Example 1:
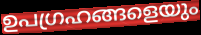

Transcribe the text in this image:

ഉപഗ്രഹങ്ങളെയും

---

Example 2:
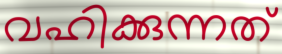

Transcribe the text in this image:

വഹിക്കുന്നത്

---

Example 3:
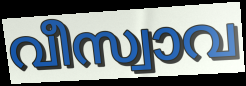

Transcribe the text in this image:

വീസ്വാവ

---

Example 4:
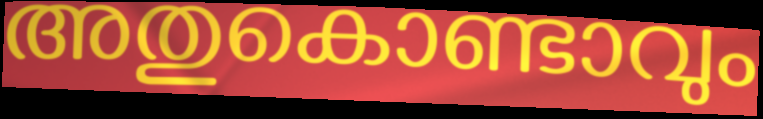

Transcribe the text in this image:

അതുകൊണ്ടാവും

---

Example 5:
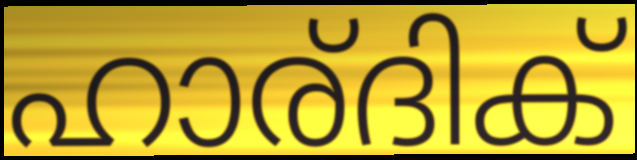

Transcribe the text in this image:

ഹാര്ദിക്